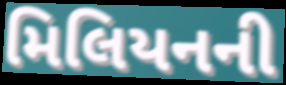
મિલિયનની